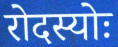
रोदस्योः